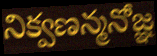
నిక్వణన్మనోజ్ఞ